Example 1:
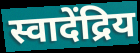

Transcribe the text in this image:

स्वादेंद्रिय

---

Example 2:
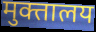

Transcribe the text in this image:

मुक्तालय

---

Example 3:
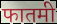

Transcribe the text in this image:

फातमी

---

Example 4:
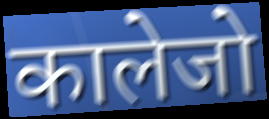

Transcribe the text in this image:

कालेजो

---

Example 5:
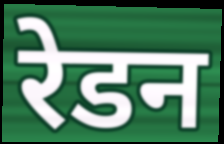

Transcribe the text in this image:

रेडन